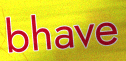
bhave